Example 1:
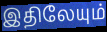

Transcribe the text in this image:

இதிலேயும்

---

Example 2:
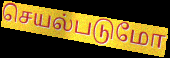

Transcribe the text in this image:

செயல்படுமோ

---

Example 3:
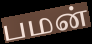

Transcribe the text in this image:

பமன்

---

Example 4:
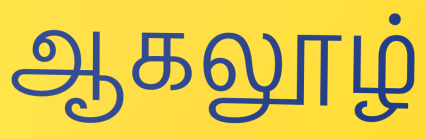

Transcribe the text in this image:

ஆகலூழ்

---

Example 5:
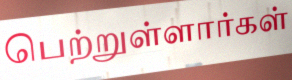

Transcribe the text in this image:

பெற்றுள்ளார்கள்